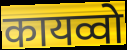
कायव्वो